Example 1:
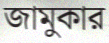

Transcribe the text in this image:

জামুকার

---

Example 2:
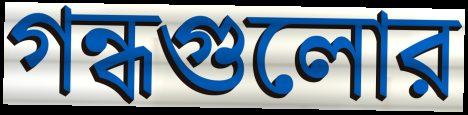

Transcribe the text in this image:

গন্ধগুলোর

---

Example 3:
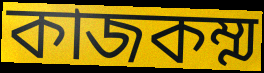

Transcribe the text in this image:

কাজকম্ম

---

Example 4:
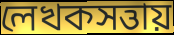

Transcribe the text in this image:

লেখকসত্তায়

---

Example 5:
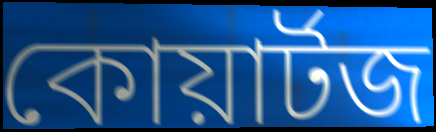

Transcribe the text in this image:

কোয়ার্টজ